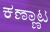
ಕಣ್ಣಾಟ